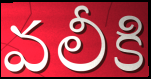
వలీకి